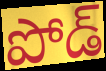
పోడ్